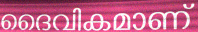
ദൈവികമാണ്